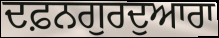
ਦਫ਼ਨਗੁਰਦੁਆਰਾ